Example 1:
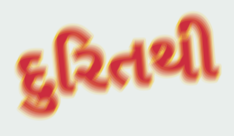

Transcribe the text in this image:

દુરિતથી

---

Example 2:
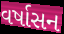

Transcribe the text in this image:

વર્ષાસન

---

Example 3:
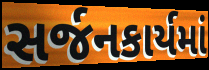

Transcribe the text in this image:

સર્જનકાર્યમાં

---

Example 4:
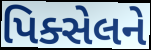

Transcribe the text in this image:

પિક્સેલને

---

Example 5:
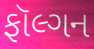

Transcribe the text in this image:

ફૉલ્ગન